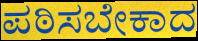
ಪಠಿಸಬೇಕಾದ